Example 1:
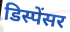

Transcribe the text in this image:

डिस्पेंसर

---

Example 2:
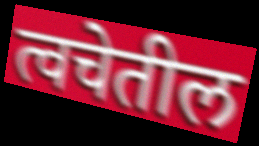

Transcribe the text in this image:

त्वचेतील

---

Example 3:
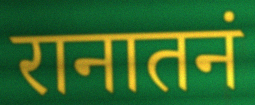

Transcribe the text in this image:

रानातनं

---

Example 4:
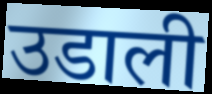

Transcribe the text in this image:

उडाली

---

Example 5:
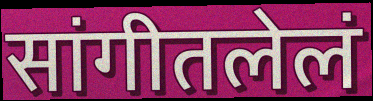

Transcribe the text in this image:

सांगीतलेलं